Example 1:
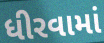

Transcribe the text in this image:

ધીરવામાં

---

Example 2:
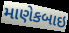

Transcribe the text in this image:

માણેકબાઇ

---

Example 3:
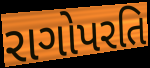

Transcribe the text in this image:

રાગોપરતિ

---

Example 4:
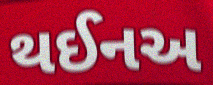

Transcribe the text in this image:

થઈનઅ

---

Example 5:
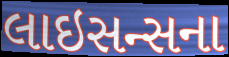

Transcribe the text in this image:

લાઇસન્સના